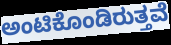
ಅಂಟಿಕೊಂಡಿರುತ್ತವೆ